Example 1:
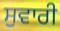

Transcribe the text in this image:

ਸੁਵਾਰੀ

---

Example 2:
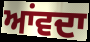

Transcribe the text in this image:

ਆਂਵਦਾ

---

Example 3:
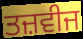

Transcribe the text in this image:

ਤਜ਼ਵੀਜ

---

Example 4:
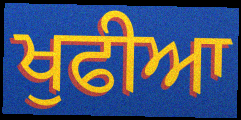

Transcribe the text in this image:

ਖੁਫੀਆ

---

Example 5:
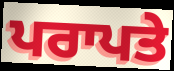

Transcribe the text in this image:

ਪਰਾਪਤੇ